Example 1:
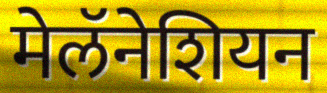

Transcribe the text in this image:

मेलॅनेशियन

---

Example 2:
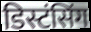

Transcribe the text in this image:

डिस्टंसिंग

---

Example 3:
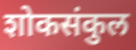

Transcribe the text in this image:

शोकसंकुल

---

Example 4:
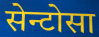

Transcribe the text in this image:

सेन्टोसा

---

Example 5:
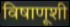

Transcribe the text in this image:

विषाणूशी